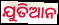
ଯୁତିଆନ